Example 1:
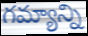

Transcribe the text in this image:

గమ్యాన్ని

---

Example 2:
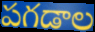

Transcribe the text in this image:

పగడాల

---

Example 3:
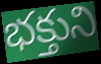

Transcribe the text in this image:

భక్తుని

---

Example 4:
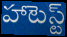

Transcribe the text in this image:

హాటెస్ట్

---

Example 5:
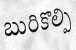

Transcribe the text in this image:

బురికొల్పి